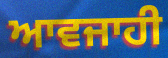
ਆਵਜਾਹੀ